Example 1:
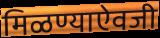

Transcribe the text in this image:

मिळण्याऐवजी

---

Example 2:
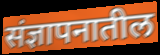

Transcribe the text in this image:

संज्ञापनातील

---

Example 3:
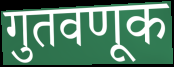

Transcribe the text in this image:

गुतवणूक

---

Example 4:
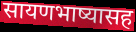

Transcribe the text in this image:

सायणभाष्यासह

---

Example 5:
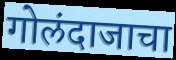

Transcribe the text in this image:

गोलंदाजाचा